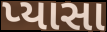
પ્યાસા